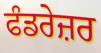
ਫੰਡਰੇਜ਼ਰ